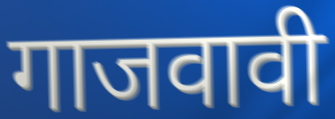
गाजवावी